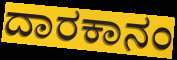
ದಾರಕಾನಂ